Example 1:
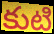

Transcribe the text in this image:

కుటి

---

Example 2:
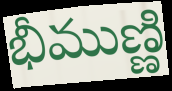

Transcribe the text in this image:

భీముణ్ణి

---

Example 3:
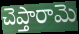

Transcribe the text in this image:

చెప్తారామె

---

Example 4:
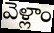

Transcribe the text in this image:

వెళ్లాం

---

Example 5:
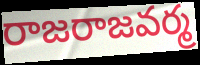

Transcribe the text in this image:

రాజరాజవర్మ